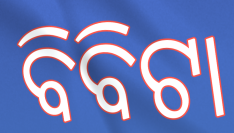
ବିବିଟା